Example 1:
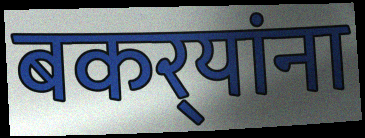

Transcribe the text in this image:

बकर्‍यांना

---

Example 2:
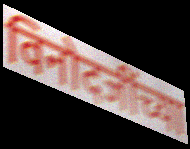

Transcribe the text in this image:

विनोदजींच्या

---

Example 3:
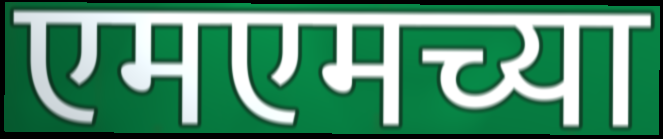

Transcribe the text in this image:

एमएमच्या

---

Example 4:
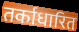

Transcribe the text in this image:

तर्काधारित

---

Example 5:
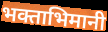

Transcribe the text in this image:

भक्ताभिमानी